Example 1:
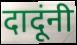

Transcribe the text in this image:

दादूंनी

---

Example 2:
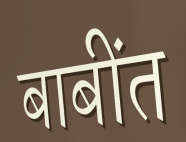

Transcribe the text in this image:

बाबींत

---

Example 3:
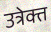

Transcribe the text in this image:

उत्रेक्त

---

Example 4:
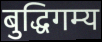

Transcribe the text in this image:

बुद्धिगम्य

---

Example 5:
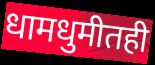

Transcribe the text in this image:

धामधुमीतही